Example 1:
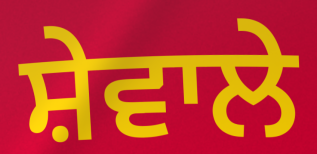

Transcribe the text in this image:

ਸ਼ੇਵਾਲੇ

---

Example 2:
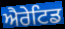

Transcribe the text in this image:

ਐਰੇਟਿਡ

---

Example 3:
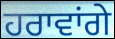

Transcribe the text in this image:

ਹਰਾਵਾਂਗੇ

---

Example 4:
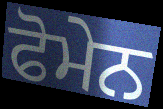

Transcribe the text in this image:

ਫੋਮੇਨ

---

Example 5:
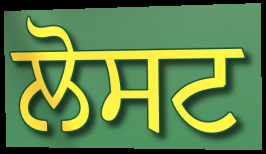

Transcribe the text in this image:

ਲੋਸਟ